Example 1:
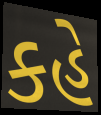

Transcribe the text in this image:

કહે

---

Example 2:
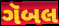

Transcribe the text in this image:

ગૅબલ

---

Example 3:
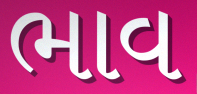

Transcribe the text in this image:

ભાવ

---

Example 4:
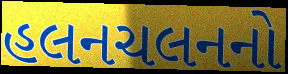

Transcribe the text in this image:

હલનચલનનો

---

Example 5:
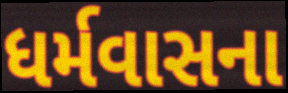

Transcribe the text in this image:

ધર્મવાસના